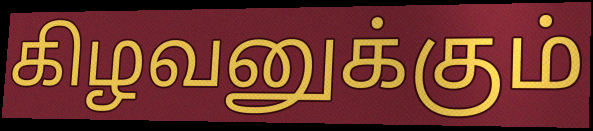
கிழவனுக்கும்